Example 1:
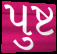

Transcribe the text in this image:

પુષ્ટ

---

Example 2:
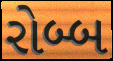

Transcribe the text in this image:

રોબ્બ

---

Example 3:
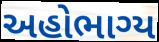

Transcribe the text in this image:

અહોભાગ્ય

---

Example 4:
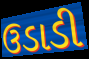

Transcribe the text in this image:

ઉડાડી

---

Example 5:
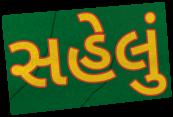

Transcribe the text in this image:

સહેલું